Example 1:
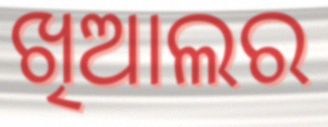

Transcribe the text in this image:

ଖିଆଲର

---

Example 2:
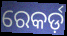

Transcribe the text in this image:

ରେକର୍ଡ଼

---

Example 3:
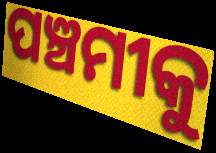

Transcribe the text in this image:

ପଞ୍ଚମୀକୁ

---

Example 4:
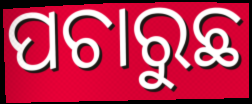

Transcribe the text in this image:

ପଚାରୁଛ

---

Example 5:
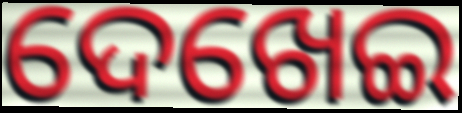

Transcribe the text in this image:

ଦେଖେଇ